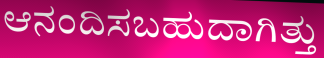
ಆನಂದಿಸಬಹುದಾಗಿತ್ತು